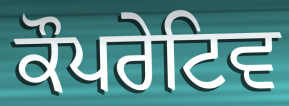
ਕੌਪਰੇਟਿਵ